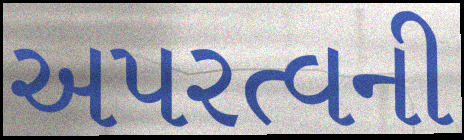
અપરત્વની